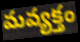
మవ్యక్తం